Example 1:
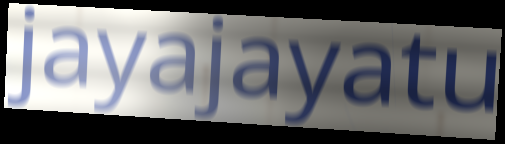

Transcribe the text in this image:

jayajayatu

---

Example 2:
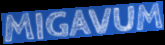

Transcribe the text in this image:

MIGAVUM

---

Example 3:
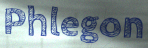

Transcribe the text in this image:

Phlegon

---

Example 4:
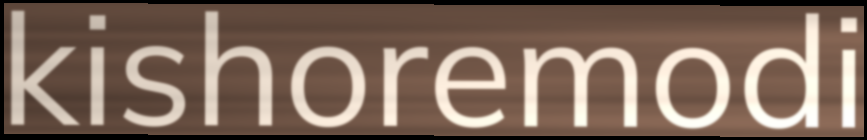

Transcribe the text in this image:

kishoremodi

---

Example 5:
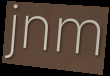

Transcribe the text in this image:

jnm